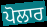
ਪੋਲਾਰ